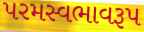
પરમસ્વભાવરૂપ